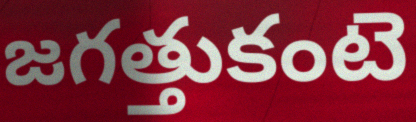
జగత్తుకంటె